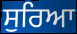
ਸੁਰਿਆ